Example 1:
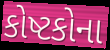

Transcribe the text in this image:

કોષ્ટકોના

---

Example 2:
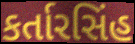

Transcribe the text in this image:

કર્તારસિંહ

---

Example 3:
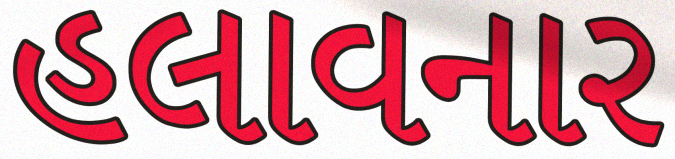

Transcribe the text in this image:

હલાવનાર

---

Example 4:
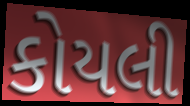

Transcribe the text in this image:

કોયલી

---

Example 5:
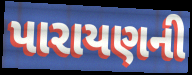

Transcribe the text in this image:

પારાયણની